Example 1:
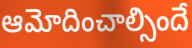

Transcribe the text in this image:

ఆమోదించాల్సిందే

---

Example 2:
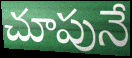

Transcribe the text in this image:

చూపునే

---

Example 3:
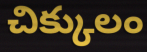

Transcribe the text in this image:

చిక్కులం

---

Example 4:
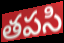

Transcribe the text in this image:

తపసి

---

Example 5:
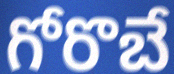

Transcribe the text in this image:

గోరొబే